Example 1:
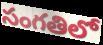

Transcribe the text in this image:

సంగతిలో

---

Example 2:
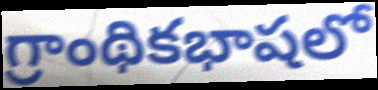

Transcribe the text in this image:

గ్రాంథికభాషలో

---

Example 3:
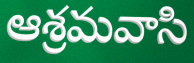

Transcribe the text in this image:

ఆశ్రమవాసి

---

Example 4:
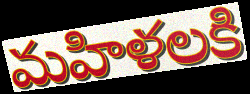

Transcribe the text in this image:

మహిళలకి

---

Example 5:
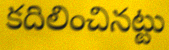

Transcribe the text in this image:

కదిలించినట్టు